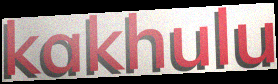
kakhulu